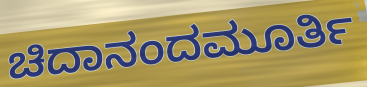
ಚಿದಾನಂದಮೂರ್ತಿ